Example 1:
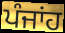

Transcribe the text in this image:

ਪੰਜਾਂਹ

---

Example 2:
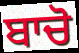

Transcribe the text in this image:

ਬਾਚੋ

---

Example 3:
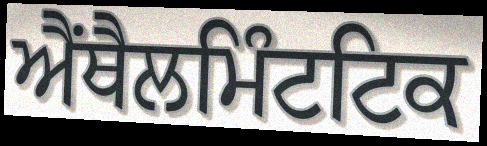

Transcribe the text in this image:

ਐਂਥੈਲਮਿੰਟਟਿਕ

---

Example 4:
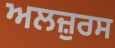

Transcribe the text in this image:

ਅਲਜ਼ੁਰਸ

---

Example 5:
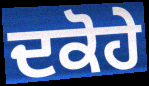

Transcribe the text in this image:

ਦਕੋਹੇ